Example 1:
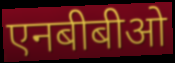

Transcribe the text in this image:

एनबीबीओ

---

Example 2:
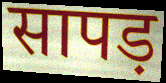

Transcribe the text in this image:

सापड़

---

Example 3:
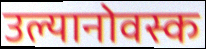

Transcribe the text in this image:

उल्यानोवस्क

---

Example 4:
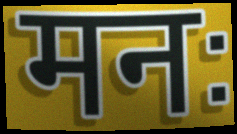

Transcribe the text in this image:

मनः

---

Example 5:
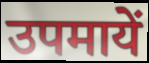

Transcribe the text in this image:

उपमायें